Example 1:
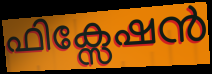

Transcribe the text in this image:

ഫിക്സേഷൻ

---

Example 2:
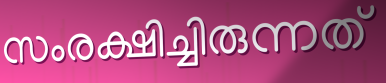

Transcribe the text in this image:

സംരക്ഷിച്ചിരുന്നത്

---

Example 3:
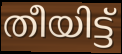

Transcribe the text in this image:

തീയിട്ട്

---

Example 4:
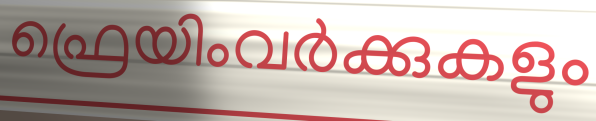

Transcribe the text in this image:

ഫ്രെയിംവർക്കുകളും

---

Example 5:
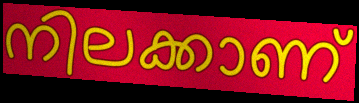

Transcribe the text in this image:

നിലക്കാണ്